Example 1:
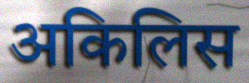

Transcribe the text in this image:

अकिलिस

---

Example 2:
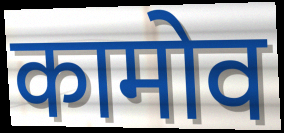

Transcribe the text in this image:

कामोव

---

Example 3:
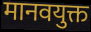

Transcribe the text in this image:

मानवयुक्त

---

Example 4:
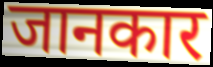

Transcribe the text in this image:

जानकार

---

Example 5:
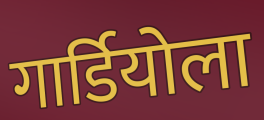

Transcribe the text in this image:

गार्डियोला